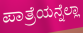
ಪಾತ್ರೆಯನ್ನೆಲ್ಲಾ